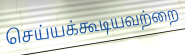
செய்யக்கூடியவற்றை